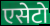
एसेटो